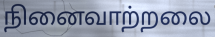
நினைவாற்றலை